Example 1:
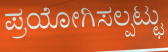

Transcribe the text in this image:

ಪ್ರಯೋಗಿಸಲ್ಪಟ್ಟು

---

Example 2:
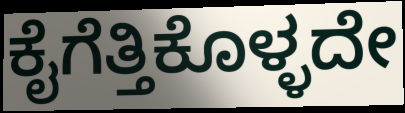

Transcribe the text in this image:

ಕೈಗೆತ್ತಿಕೊಳ್ಳದೇ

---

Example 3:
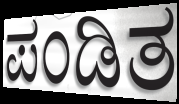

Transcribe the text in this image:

ಪಂಡಿತ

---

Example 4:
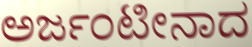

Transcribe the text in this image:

ಅರ್ಜಂಟೀನಾದ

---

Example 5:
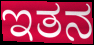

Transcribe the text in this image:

ಇತನ